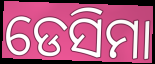
ଡେସିମା